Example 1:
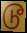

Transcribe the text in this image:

டூ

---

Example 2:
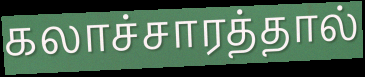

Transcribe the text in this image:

கலாச்சாரத்தால்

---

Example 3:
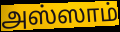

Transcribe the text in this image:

அஸ்ஸாம்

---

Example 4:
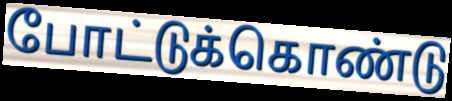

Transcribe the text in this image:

போட்டுக்கொண்டு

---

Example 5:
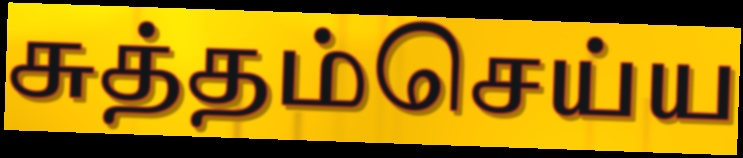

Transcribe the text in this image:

சுத்தம்செய்ய